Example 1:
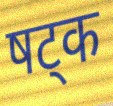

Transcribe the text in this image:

षट्क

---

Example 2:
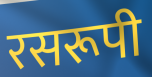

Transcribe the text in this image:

रसरूपी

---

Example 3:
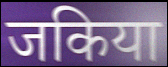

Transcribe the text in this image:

जकिया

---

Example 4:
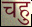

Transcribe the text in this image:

चहु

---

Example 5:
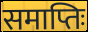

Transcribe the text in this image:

समाप्तिः